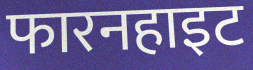
फारनहाइट